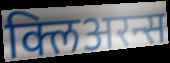
क्लिअरन्स